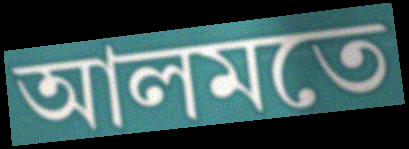
আলমতে